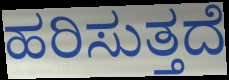
ಹರಿಸುತ್ತದೆ